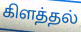
கிளத்தல்